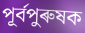
পূৰ্বপুৰুষক